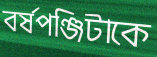
বর্ষপঞ্জিটাকে